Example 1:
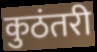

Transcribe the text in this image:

कुठंतरी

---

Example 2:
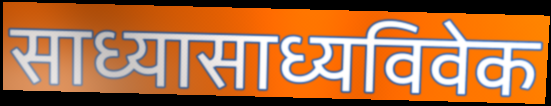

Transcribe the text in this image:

साध्यासाध्यविवेक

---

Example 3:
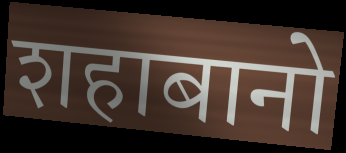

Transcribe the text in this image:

शहाबानो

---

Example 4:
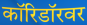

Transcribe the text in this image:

कॉरिडॉरवर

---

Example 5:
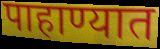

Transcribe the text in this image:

पाहाण्यात